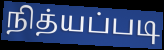
நித்யப்படி